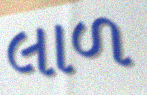
લાળ